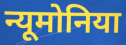
न्यूमोनिया